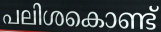
പലിശകൊണ്ട്